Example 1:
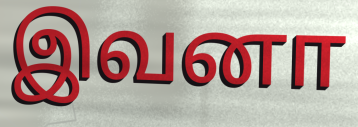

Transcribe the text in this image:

இவனா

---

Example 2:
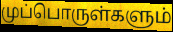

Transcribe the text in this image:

முப்பொருள்களும்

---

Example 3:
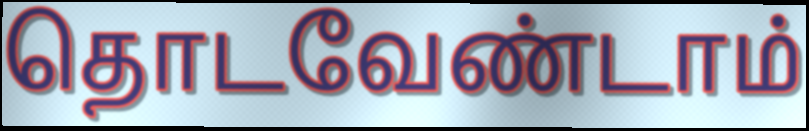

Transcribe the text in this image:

தொடவேண்டாம்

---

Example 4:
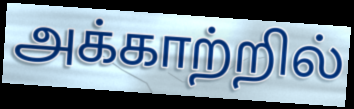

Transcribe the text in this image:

அக்காற்றில்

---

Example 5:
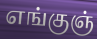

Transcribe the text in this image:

எங்குஞ்